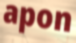
apon